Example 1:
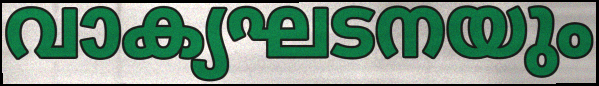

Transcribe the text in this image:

വാക്യഘടനയും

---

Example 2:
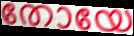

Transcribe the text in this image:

തോയേ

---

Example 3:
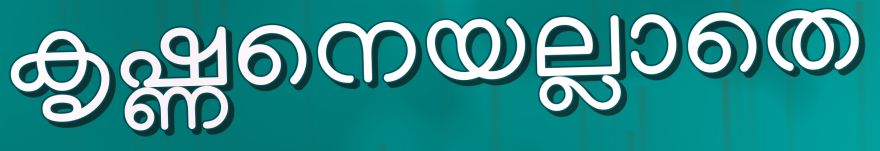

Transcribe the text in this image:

കൃഷ്ണനെയല്ലാതെ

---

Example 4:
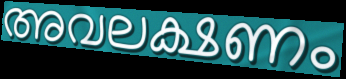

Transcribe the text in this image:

അവലക്ഷണം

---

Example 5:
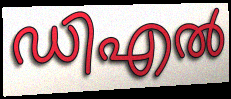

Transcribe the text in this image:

ഡിഎൽ